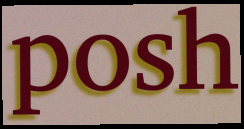
posh